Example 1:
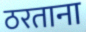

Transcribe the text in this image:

ठरताना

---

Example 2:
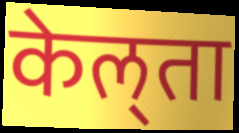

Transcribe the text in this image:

केल्ता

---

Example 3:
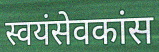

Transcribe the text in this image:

स्वयंसेवकांस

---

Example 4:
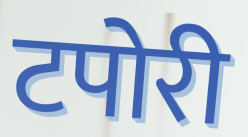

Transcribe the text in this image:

टपोरी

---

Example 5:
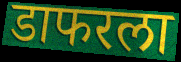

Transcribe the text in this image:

डाफरला